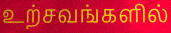
உற்சவங்களில்